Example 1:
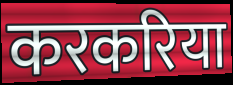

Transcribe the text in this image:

करकरिया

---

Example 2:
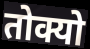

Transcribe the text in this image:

तोक्यो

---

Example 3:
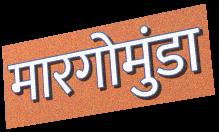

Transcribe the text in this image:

मारगोमुंडा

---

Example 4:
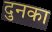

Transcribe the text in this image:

दुनका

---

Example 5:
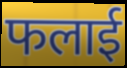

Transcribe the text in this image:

फलाई